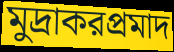
মুদ্রাকরপ্রমাদ